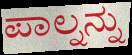
ಪಾಲ್ನನ್ನು